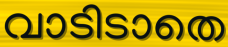
വാടിടാതെ